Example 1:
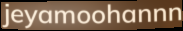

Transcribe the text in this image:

jeyamoohannn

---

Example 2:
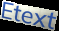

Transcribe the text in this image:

Etext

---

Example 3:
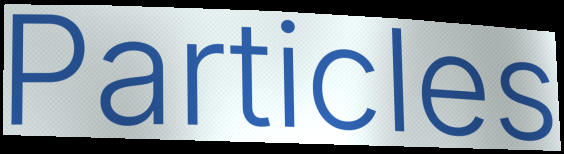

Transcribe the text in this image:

Particles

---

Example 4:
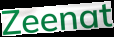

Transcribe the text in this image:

Zeenat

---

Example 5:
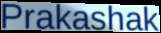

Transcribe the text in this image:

Prakashak